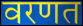
वरणत